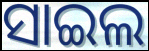
ସାଇଲ